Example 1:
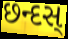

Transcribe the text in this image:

છન્દસ્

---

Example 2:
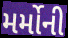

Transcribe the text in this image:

મર્મોની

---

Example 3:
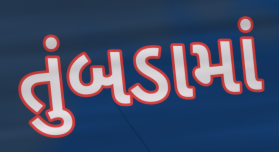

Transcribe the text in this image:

તુંબડામાં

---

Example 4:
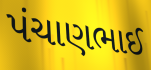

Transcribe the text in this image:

પંચાણભાઈ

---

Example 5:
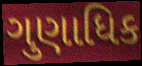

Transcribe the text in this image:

ગુણાધિક